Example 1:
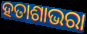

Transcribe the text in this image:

ହତାଶାଭରା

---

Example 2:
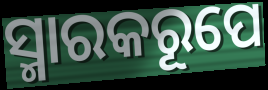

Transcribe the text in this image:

ସ୍ମାରକରୂପେ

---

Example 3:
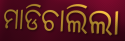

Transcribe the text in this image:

ମାଡିଚାଲିଲା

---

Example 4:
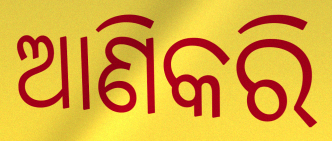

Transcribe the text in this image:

ଆଣିକରି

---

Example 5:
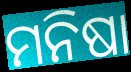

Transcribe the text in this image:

ମନିଷା